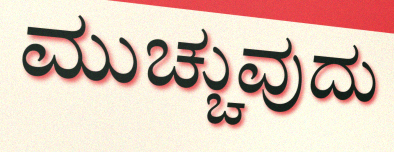
ಮುಚ್ಚುವುದು